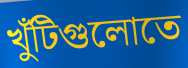
খুঁটিগুলোতে